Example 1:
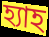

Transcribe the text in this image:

হ্যাহ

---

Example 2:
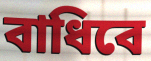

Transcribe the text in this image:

বাধিবে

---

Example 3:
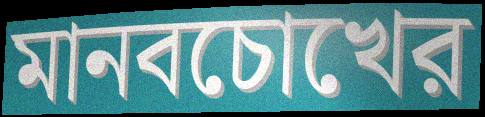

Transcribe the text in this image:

মানবচোখের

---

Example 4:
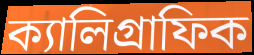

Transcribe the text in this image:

ক্যালিগ্রাফিক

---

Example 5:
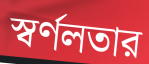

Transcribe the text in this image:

স্বর্ণলতার